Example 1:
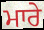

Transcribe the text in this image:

ਮਾਰੇ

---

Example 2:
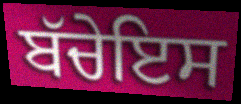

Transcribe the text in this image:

ਬੱਚੇਇਸ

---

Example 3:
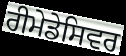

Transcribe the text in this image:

ਰੀਮੇਡੇਸਿਵਰ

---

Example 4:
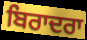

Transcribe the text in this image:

ਬਿਰਾਦਰਾ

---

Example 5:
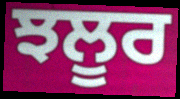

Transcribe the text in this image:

ਝਲੂਰ